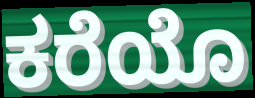
ಕರೆಯೊ